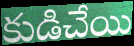
కుడిచేయి